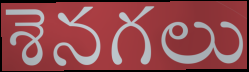
శెనగలు